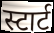
स्टार्ट